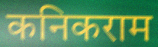
कनिकराम